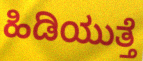
ಹಿಡಿಯುತ್ತೆ